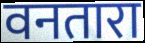
वनतारा